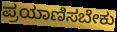
ಪ್ರಯಾಣಿಸಬೇಕು